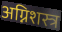
अग्निशस्त्र